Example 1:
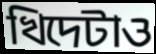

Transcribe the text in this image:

খিদেটাও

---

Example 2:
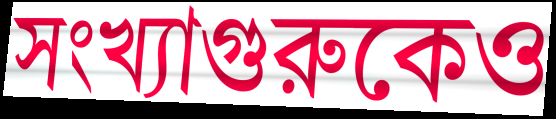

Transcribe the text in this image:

সংখ্যাগুরুকেও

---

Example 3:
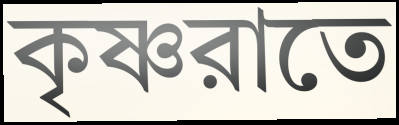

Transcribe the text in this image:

কৃষ্ণরাতে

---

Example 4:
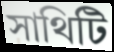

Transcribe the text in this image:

সাথিটি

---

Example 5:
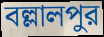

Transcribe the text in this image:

বল্লালপুর